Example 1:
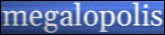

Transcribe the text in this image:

megalopolis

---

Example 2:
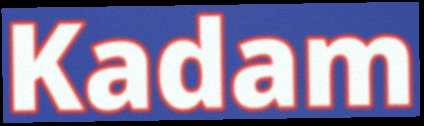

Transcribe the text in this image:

Kadam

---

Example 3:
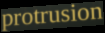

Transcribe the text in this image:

protrusion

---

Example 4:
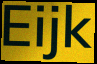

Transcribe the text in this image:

Eijk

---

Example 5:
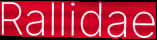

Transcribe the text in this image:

Rallidae